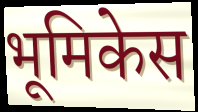
भूमिकेस